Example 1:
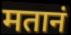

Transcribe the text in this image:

मतानं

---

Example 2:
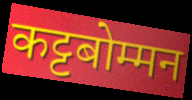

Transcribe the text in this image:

कट्टबोम्मन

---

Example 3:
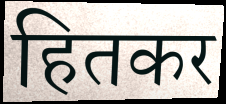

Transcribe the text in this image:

हितकर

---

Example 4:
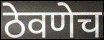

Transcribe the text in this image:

ठेवणेच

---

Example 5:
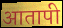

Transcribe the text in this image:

आतापी